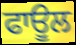
ਫਾਊਲ